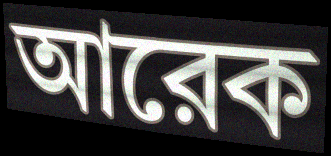
আরেক